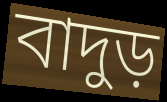
বাদুড়